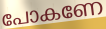
പോകണേ